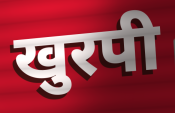
खुरपी